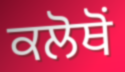
ਕਲੋਥੋਂ